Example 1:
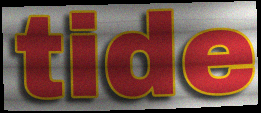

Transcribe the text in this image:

tide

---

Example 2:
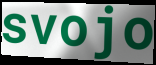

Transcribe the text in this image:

svojo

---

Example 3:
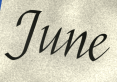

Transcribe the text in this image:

June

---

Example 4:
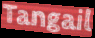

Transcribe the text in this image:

Tangail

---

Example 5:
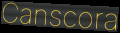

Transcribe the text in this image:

Canscora